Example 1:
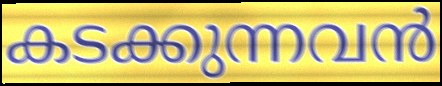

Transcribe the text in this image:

കടക്കുന്നവൻ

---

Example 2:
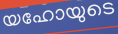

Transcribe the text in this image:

യഹോയുടെ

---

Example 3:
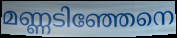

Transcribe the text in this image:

മണ്ണടിഞ്ഞേനെ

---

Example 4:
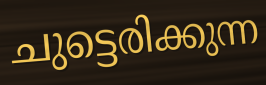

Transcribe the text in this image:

ചുട്ടെരിക്കുന്ന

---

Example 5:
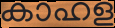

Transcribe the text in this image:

കാഹള